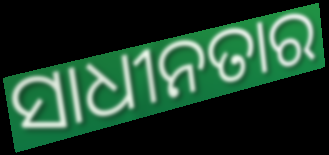
ସାଧୀନତାର